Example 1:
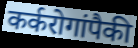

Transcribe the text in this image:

कर्करोगांपैकी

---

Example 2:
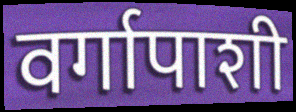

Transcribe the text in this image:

वर्गापाशी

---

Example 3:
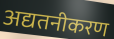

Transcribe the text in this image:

अद्यतनीकरण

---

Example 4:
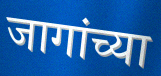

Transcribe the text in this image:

जागांच्या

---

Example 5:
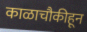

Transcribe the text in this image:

काळाचौकीहून